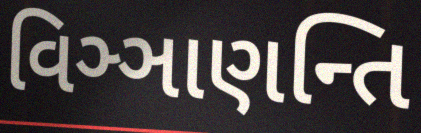
વિઞ્ઞાણન્તિ